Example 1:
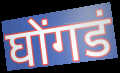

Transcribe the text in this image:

घोंगडं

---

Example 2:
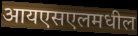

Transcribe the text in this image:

आयएसएलमधील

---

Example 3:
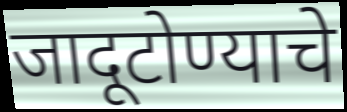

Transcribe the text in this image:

जादूटोण्याचे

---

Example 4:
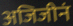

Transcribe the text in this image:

अजिजीनं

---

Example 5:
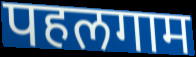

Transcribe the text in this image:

पहलगाम